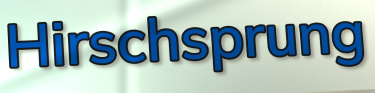
Hirschsprung